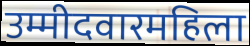
उम्मीदवारमहिला